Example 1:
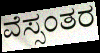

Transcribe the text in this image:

ವೆಸ್ಸಂತರ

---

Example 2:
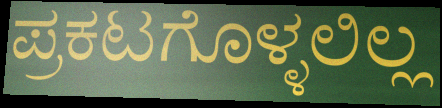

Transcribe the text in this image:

ಪ್ರಕಟಗೊಳ್ಳಲಿಲ್ಲ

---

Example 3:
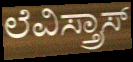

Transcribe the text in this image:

ಲೆವಿಸ್ತ್ರಾಸ್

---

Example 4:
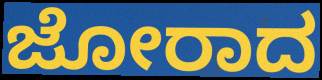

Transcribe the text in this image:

ಜೋರಾದ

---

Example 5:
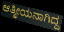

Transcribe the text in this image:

ಆತ್ಮೀಯನಾಗಿದ್ದ